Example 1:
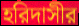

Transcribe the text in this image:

হরিদাসীর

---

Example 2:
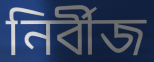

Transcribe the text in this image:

নির্বীজ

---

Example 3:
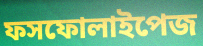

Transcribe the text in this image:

ফসফোলাইপেজ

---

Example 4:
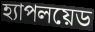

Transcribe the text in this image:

হ্যাপলয়েড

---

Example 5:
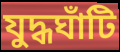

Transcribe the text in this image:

যুদ্ধঘাঁটি